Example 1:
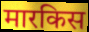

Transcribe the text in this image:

मारकिस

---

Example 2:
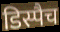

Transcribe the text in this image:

डिस्‍पैच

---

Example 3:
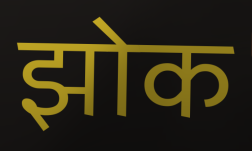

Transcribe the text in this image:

झोक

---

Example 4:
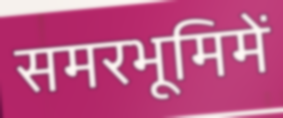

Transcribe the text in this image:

समरभूमिमें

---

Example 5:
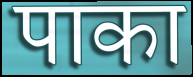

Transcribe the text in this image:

पाका